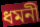
ধমনী